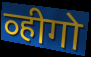
व्हीगो